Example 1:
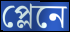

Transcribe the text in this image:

প্লেনে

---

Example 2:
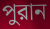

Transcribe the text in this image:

পুরান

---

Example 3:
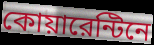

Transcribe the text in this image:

কোয়ারেন্টিনে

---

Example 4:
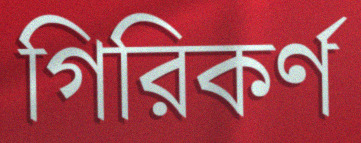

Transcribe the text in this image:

গিরিকর্ণ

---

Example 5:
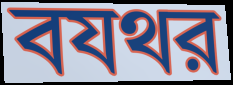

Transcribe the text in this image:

বযথর